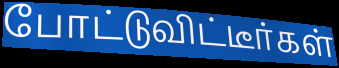
போட்டுவிட்டீர்கள்